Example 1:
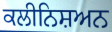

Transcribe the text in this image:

ਕਲੀਨਿਸ਼ਅਨ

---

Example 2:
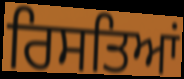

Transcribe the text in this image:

ਰਿਸਤਿਆਂ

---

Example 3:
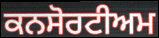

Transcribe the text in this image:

ਕਨਸੋਰਟੀਅਮ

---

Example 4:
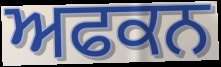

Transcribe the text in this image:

ਅਫਕਨ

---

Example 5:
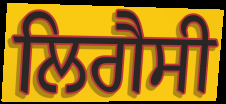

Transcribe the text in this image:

ਲਿਗੈਸੀ